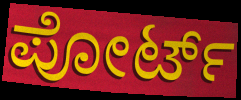
ಪೋರ್ಟ್